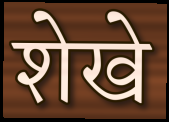
शेखे